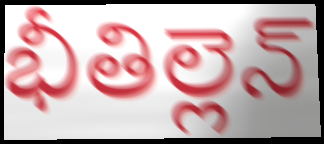
భీతిల్లెన్